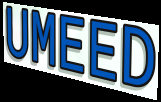
UMEED